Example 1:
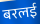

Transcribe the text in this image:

बरलई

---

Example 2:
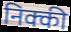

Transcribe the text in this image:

निक्‍की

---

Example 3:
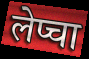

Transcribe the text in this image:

लेप्चा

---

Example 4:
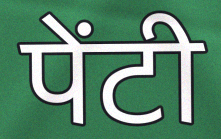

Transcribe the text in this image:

पेंटी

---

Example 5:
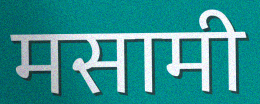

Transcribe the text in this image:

मसामी